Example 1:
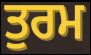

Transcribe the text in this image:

ਤੁਰਮ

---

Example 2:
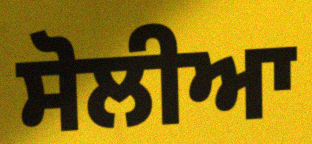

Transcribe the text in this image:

ਸੋਲੀਆ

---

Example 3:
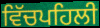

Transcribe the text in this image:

ਵਿੱਚਪਹਿਲੀ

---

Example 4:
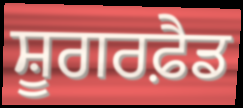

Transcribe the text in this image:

ਸ਼ੂਗਰਫ਼ੈਡ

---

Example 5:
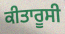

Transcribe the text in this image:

ਕੀਤਾਰੂਸੀ